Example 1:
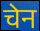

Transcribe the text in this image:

चेन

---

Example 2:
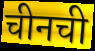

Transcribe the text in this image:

चीनची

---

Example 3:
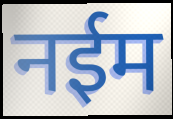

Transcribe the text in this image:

नईम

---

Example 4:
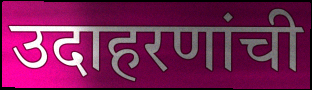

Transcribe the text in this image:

उदाहरणांची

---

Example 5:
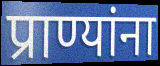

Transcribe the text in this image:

प्राण्यांना